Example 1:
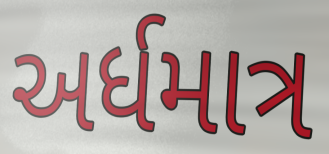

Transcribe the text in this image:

અર્ધમાત્ર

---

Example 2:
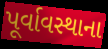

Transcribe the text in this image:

પૂર્વાવસ્થાના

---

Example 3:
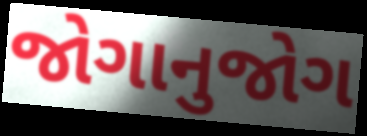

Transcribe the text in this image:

જોગાનુજોગ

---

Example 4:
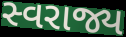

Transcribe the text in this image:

સ્વરાજ્ય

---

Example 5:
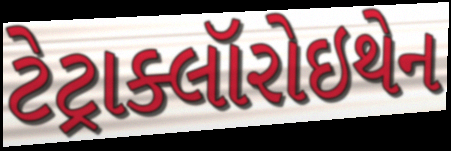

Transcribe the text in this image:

ટેટ્રાક્લૉરોઇથેન